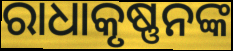
ରାଧାକୃଷ୍ଣନଙ୍କ